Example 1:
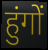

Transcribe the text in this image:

हुंगों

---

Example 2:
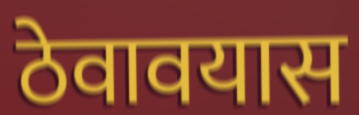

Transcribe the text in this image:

ठेवावयास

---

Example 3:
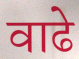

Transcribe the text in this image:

वाढे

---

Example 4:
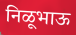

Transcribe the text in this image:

निळूभाऊ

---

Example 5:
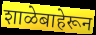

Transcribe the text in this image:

शाळेबाहेरून